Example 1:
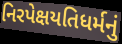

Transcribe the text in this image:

નિરપેક્ષયતિધર્મનું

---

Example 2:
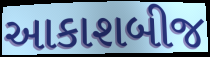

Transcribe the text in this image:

આકાશબીજ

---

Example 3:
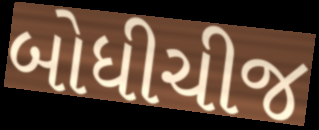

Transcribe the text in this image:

બોધીચીજ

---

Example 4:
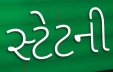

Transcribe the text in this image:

સ્ટેટની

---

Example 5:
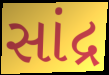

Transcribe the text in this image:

સાંદ્ર